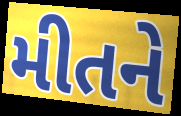
મીતને